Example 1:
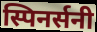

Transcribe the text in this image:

स्पिनर्सनी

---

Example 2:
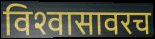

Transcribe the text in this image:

विश्वासावरच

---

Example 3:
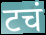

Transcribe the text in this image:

टचं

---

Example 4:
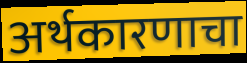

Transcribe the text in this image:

अर्थकारणाचा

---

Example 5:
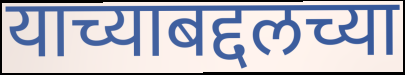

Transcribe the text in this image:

याच्याबद्दलच्या